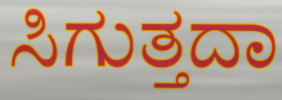
ಸಿಗುತ್ತದಾ